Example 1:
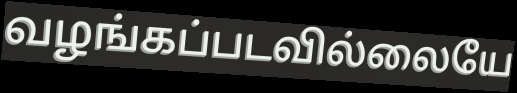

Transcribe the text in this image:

வழங்கப்படவில்லையே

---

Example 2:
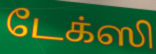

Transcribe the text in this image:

டேக்ஸி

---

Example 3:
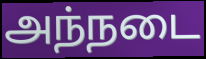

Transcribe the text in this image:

அந்நடை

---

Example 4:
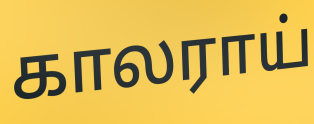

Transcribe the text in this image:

காலராய்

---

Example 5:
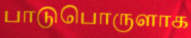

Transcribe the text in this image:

பாடுபொருளாக